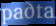
padta